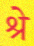
श्रे